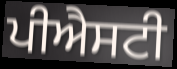
ਪੀਐਸਟੀ